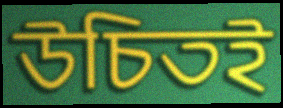
উচিতই